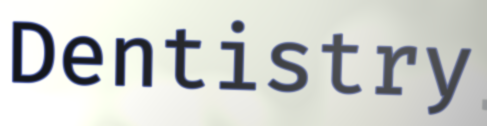
Dentistry